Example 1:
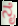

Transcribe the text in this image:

ನೈ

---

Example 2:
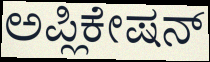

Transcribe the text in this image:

ಅಪ್ಲಿಕೇಷನ್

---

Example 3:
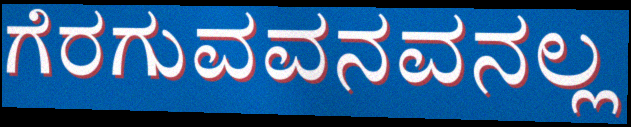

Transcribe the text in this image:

ಗೆರಗುವವನವನಲ್ಲ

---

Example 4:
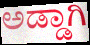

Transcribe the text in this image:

ಅಡ್ಡಾಗಿ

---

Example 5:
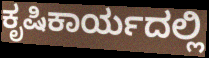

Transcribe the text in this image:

ಕೃಷಿಕಾರ್ಯದಲ್ಲಿ